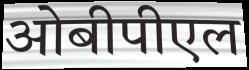
ओबीपीएल